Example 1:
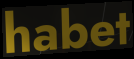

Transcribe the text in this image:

habet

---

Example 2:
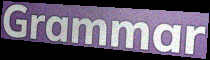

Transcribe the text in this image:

Grammar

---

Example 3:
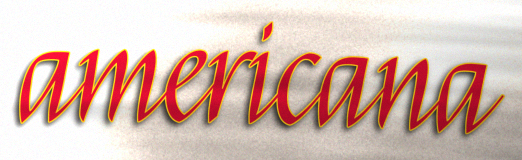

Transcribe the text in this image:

americana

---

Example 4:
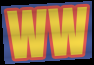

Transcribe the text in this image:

WW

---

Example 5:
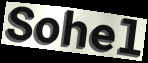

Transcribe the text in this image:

Sohel